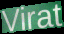
Virat